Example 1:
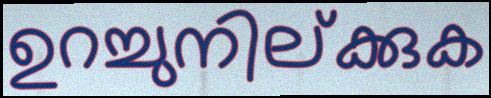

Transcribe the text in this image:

ഉറച്ചുനില്ക്കുക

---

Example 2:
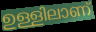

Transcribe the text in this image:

ഉള്ളിലാണ്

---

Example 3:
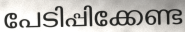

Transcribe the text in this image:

പേടിപ്പിക്കേണ്ട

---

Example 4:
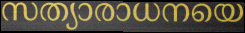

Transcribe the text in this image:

സത്യാരാധനയെ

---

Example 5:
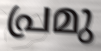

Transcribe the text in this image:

പ്രമു